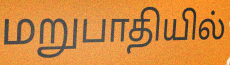
மறுபாதியில்